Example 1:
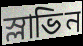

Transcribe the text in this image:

স্লাভিন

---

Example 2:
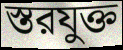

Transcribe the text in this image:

স্তরযুক্ত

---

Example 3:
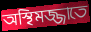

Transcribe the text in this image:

অস্থিমজ্জাতে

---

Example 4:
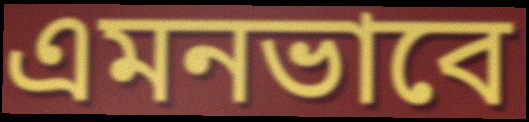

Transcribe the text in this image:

এমনভাবে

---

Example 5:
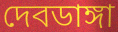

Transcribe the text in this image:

দেবডাঙ্গা